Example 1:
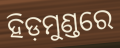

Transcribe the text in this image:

ହିଡ଼ମୁଣ୍ଡରେ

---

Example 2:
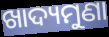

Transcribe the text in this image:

ଖାଦ୍ୟମୁଣା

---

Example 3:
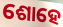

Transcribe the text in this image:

ଶୋହେ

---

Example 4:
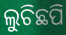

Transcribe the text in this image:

ଲୁଚିଛପି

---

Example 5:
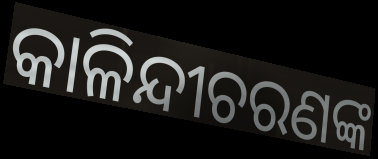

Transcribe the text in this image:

କାଳିନ୍ଦୀଚରଣଙ୍କ